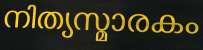
നിത്യസ്മാരകം